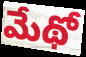
మేథో